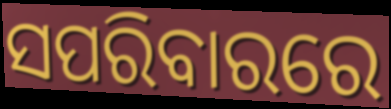
ସପରିବାରରେ